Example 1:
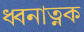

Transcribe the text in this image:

ধ্বনাত্নক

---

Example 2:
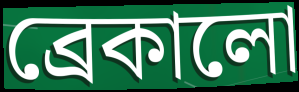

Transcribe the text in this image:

ব্রেকালো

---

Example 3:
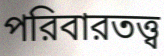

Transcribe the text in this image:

পরিবারতত্ত্ব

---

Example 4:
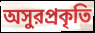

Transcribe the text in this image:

অসুরপ্রকৃতি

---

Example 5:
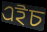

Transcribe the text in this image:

এইচ